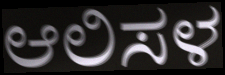
ಆಲಿಸಳ